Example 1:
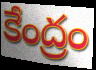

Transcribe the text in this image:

కేంద్రం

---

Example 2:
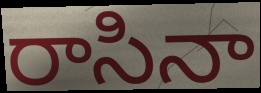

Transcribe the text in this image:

రాసినా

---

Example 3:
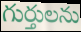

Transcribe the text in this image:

గుర్తులను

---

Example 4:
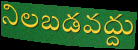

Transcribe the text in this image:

నిలబడవద్దు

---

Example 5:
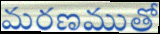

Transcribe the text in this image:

మరణముతో